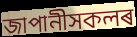
জাপানীসকলৰ